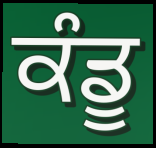
ਕੰਡੂ